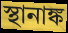
স্থানাঙ্ক